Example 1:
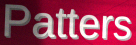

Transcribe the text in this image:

Patters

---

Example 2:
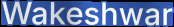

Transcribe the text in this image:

Wakeshwar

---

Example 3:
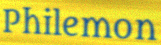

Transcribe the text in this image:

Philemon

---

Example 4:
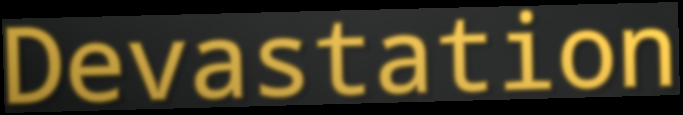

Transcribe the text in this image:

Devastation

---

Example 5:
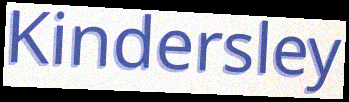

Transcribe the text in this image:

Kindersley